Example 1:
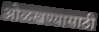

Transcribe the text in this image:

ओळखण्यासाठी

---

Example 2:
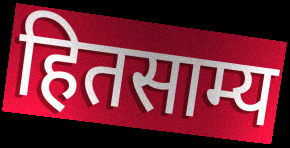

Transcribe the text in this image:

हितसाम्य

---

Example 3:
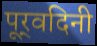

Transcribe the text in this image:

पूर्वदिनी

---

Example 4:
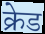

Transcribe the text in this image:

क्रेड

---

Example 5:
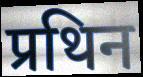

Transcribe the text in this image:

प्रथिन